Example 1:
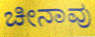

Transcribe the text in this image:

ಚೀನಾವು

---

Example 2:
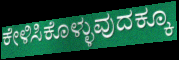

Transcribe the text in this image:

ಕೇಳಿಸಿಕೊಳ್ಳುವುದಕ್ಕೂ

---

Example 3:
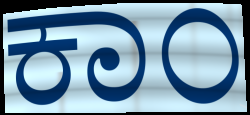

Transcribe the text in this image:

ಕಾಂ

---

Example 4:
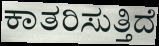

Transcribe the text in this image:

ಕಾತರಿಸುತ್ತಿದೆ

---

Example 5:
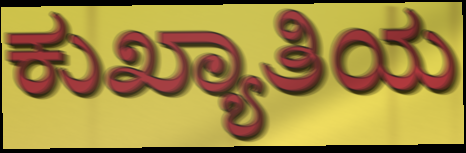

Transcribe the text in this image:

ಕುಖ್ಯಾತಿಯ